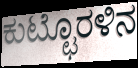
ಕುಟ್ಟೊರಳಿನ